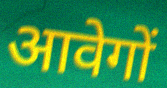
आवेगों